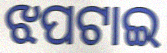
ଝପଟାଇ